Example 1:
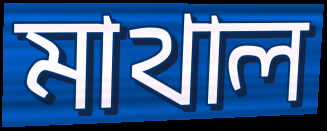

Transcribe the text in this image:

মাথাল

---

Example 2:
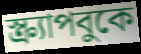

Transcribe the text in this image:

স্ক্র্যাপবুকে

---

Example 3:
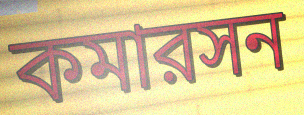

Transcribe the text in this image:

কমারসন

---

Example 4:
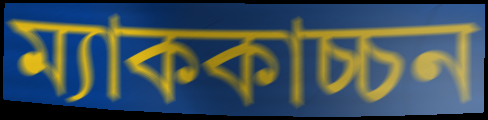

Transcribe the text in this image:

ম্যাককাচ্চন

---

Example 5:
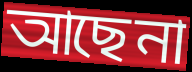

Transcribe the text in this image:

আছেনা